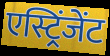
एस्ट्रिंजेंट